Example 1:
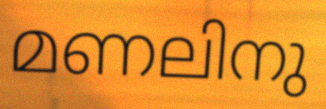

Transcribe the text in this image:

മണലിനു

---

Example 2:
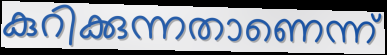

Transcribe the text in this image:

കുറിക്കുന്നതാണെന്ന്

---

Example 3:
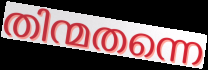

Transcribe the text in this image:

തിന്മതന്നെ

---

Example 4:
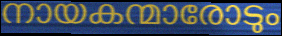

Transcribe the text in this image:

നായകന്മാരോടും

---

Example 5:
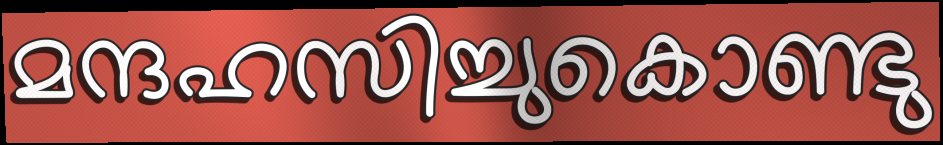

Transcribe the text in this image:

മന്ദഹസിച്ചുകൊണ്ടു